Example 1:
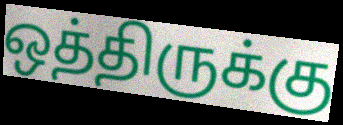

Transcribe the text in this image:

ஒத்திருக்கு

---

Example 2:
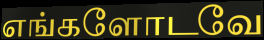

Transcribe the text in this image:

எங்களோடவே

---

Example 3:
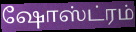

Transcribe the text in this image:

ஷோஸ்ட்ரம்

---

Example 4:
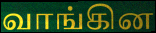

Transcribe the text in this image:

வாங்கின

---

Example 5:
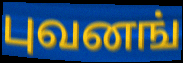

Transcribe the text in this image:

புவனங்